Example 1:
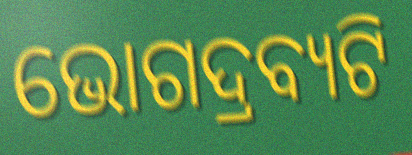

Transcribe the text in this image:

ଭୋଗଦ୍ରବ୍ୟଟି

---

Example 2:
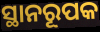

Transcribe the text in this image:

ସ୍ଥାନରୂପକ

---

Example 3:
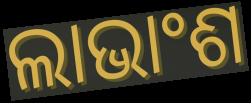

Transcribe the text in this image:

ଲାଭାଂଶ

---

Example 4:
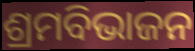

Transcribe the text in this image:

ଶ୍ରମବିଭାଜନ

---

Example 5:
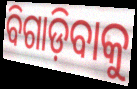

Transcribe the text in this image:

ବିଗାଡ଼ିବାକୁ